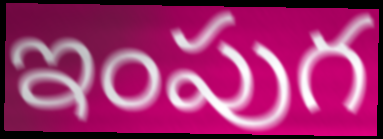
ఇంపుగ